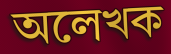
অলেখক